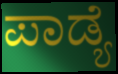
ಪಾಡ್ಯೆ